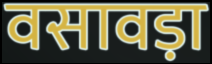
वसावड़ा